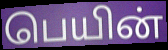
பெயின்